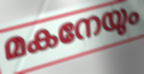
മകനേയും